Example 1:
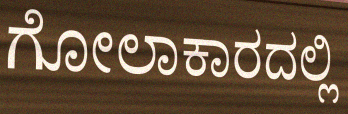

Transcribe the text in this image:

ಗೋಲಾಕಾರದಲ್ಲಿ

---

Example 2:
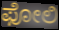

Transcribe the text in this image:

ಫೋಲಿ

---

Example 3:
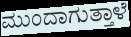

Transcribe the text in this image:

ಮುಂದಾಗುತ್ತಾಳೆ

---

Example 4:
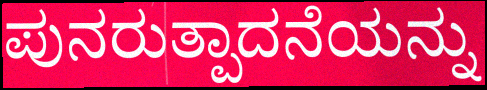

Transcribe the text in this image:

ಪುನರುತ್ಪಾದನೆಯನ್ನು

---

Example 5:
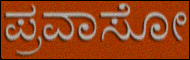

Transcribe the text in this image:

ಪ್ರವಾಸೋ